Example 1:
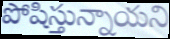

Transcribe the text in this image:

పోషిస్తున్నాయని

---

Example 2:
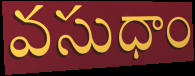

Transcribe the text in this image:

వసుధాం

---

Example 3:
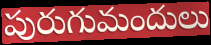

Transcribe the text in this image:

పురుగుమందులు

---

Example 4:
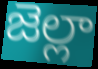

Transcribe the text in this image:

జెల్లా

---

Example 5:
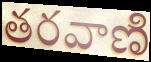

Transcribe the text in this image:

తరవాణి